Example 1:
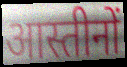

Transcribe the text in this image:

आस्तीनों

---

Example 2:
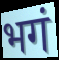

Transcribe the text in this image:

भगं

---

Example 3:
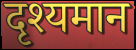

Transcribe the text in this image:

दृश्यमान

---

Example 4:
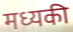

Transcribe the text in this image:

मध्यकी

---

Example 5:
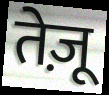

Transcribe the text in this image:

तेज़ू